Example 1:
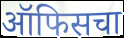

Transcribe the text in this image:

ऑफिसचा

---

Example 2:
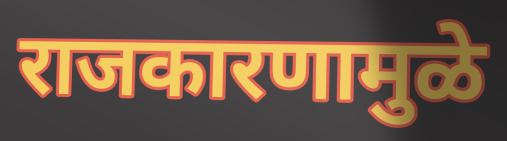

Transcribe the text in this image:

राजकारणामुळे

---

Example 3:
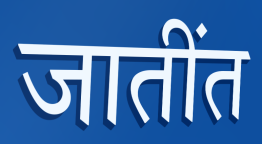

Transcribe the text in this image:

जातींत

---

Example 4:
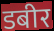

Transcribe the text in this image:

डबीर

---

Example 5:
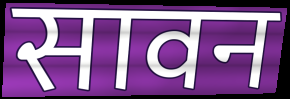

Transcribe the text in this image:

सावन